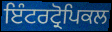
ਇੰਟਰਟ੍ਰੋਪਿਕਲ